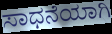
ಸಾಧನೆಯಾಗಿ